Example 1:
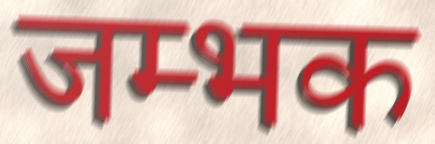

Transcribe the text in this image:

जम्भक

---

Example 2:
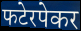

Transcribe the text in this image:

फटेरपेकर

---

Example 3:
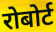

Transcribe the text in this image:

रोबोर्ट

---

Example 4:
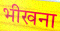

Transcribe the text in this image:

भीखना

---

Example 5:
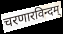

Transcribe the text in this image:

चरणारविन्दम्